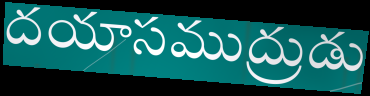
దయాసముద్రుడు